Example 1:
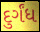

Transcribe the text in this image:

દુર્ગંધ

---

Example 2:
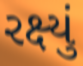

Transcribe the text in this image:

રક્ષ્યું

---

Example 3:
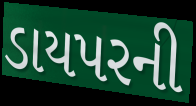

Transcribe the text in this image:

ડાયપરની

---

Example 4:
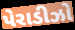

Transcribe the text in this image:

પેરાડીઝો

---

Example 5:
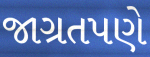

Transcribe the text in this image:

જાગ્રતપણે